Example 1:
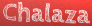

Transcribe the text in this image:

Chalaza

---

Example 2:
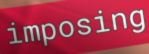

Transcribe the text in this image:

imposing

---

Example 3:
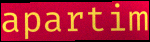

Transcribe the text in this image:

apartim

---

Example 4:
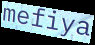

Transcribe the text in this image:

mefiya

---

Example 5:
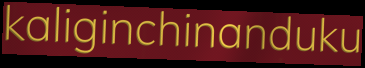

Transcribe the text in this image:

kaliginchinanduku